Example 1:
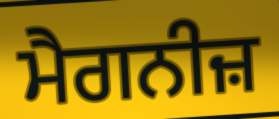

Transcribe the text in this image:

ਮੈਗਨੀਜ਼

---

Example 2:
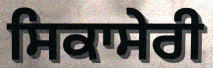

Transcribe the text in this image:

ਸਿਕਾਸੇਰੀ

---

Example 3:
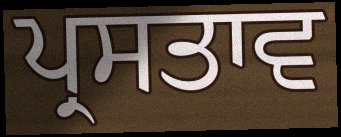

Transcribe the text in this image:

ਪ੍ਰਸਤਾਵ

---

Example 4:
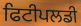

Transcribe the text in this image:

ਫਿਟੀਪਲਡੀ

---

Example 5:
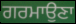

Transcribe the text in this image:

ਗਰਮਾਉਣਾ